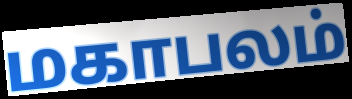
மகாபலம்